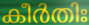
കീർതിഃ